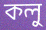
কলু